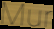
Mur